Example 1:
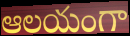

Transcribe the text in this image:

ఆలయంగా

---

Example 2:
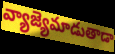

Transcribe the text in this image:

వ్యాజ్యెమాడుతాడా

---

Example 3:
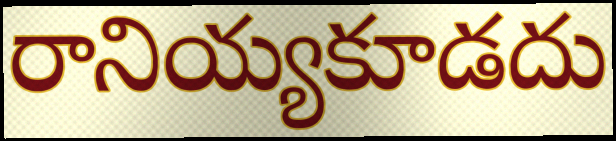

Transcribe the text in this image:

రానియ్యకూడదు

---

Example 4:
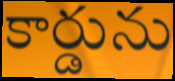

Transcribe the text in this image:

కార్డును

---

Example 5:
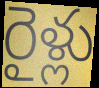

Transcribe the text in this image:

రైళ్లు